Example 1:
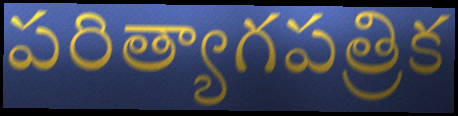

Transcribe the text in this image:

పరిత్యాగపత్రిక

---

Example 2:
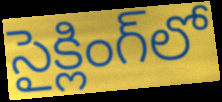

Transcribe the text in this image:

సైక్లింగ్‌లో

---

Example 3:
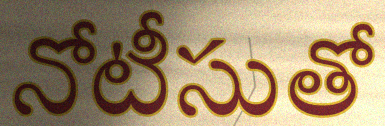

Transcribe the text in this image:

నోటీసుతో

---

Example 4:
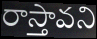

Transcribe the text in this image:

రాస్తావని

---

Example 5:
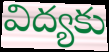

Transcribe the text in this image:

విద్యకు